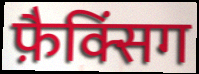
फ़ैक्सिंग